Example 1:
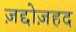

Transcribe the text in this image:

ज़द्दोज़हद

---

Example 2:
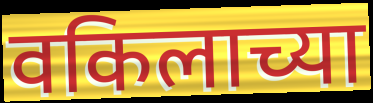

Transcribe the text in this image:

वकिलाच्या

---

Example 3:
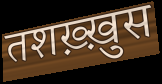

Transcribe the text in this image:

तशख़्ख़ुस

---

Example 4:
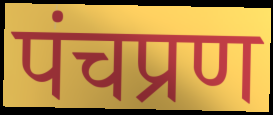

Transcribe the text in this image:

पंचप्रण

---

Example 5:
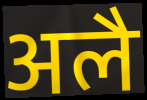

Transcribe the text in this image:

अलै